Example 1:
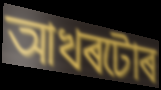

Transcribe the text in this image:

আখৰটোৰ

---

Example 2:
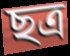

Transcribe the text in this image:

ছত্ৰ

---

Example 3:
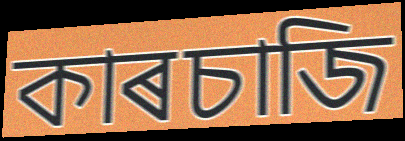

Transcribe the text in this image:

কাৰচাজি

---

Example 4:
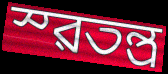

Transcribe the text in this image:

স্ৱতন্ত্ৰ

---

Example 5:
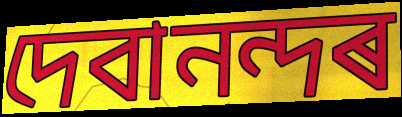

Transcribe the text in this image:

দেবানন্দৰ